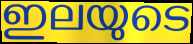
ഇലയുടെ